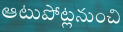
ఆటుపోట్లనుంచి